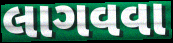
લાગવવા